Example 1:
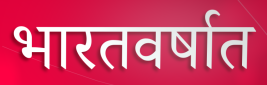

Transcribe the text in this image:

भारतवर्षात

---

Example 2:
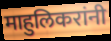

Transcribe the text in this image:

माहुलिकरांनी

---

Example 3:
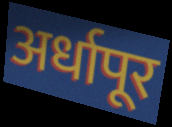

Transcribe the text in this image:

अर्धापूर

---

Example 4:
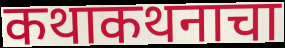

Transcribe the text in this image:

कथाकथनाचा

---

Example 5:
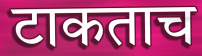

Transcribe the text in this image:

टाकताच